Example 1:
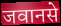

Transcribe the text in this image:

जवानसे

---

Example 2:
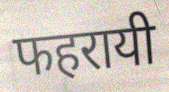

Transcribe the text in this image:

फहरायी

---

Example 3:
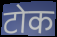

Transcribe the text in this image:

टोक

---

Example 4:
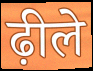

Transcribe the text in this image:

ढ़ीले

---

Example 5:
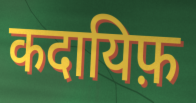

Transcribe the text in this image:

कदायिफ़